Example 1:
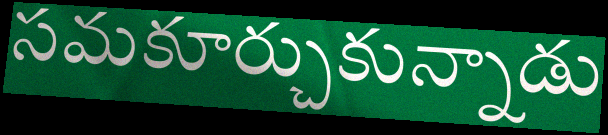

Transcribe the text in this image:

సమకూర్చుకున్నాడు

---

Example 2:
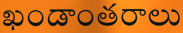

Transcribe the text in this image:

ఖండాంతరాలు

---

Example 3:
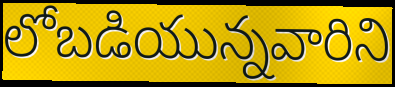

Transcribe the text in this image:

లోబడియున్నవారిని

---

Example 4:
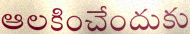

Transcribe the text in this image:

ఆలకించేందుకు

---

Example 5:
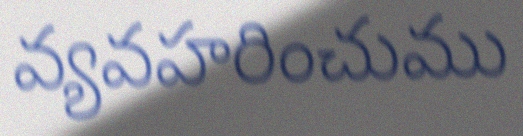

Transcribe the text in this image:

వ్యవహరించుము